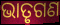
ଭାତୃଗଣ